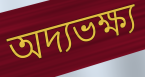
অদ্যভক্ষ্য